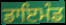
ਡਾਇਮੰਡ